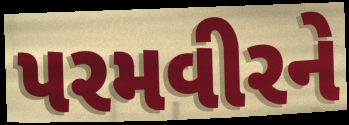
પરમવીરને